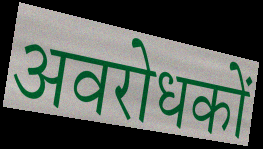
अवरोधकों